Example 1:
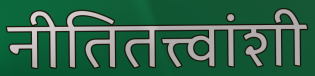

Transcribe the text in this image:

नीतितत्त्वांशी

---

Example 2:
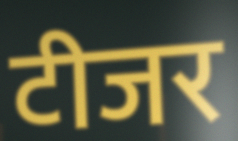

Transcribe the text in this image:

टीजर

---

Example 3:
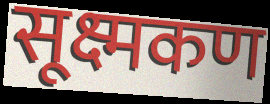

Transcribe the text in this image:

सूक्ष्मकण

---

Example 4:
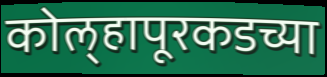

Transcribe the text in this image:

कोल्हापूरकडच्या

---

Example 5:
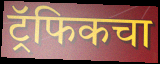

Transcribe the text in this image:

ट्रॅफिकचा